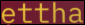
ettha